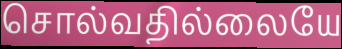
சொல்வதில்லையே